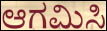
ಆಗಮಿಸಿ